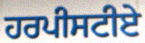
ਹਰਪੀਸਟੀਏ